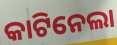
କାଟିନେଲା